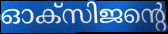
ഓക്സിജന്റെ